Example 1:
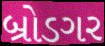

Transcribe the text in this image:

બ્રોડગર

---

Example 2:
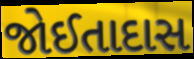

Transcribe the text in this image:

જોઈતાદાસ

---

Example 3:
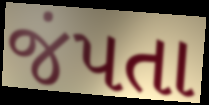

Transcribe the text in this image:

જંપતા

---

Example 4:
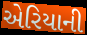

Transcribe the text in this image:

એરિયાની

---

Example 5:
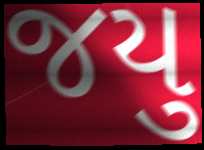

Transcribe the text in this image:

જયુ